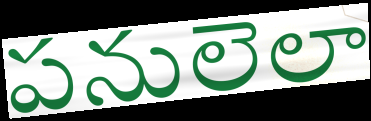
పనులెలా